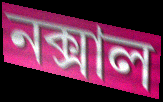
নক্সাল